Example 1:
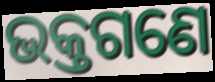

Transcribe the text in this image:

ଭକ୍ତଗଣେ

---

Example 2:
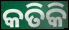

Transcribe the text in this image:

କତିକି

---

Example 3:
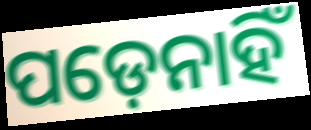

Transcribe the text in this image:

ପଡ଼େନାହିଁ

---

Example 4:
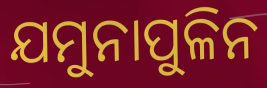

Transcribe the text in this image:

ଯମୁନାପୁଳିନ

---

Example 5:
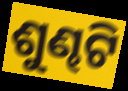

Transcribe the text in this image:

ଶୁଣ୍ଢଟି